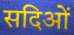
सदिओं